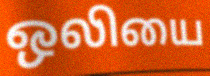
ஒலியை